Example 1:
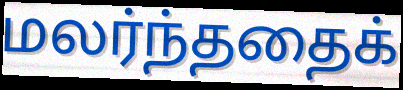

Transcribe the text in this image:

மலர்ந்ததைக்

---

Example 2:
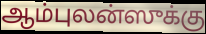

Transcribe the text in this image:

ஆம்புலன்ஸுக்கு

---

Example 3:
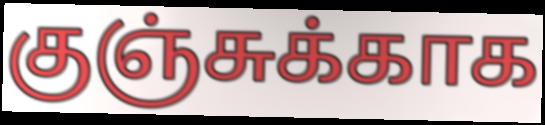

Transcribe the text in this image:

குஞ்சுக்காக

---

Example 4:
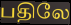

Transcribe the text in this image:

பதிலே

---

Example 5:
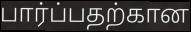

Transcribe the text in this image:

பார்ப்பதற்கான